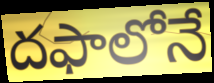
దఫాలోనే